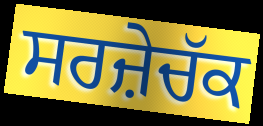
ਸਰਜ਼ੇਚੱਕ